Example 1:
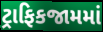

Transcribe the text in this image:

ટ્રાફિકજામમાં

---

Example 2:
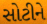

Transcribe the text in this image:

સોટીને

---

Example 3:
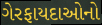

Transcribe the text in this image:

ગેરફાયદાઓનો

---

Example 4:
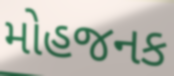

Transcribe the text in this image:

મોહજનક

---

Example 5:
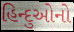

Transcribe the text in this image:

હિન્દુઓનો